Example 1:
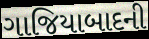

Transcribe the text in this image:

ગાજિયાબાદની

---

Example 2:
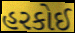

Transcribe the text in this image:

હરકોઈ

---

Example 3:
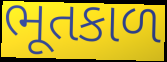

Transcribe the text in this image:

ભૂતકાળ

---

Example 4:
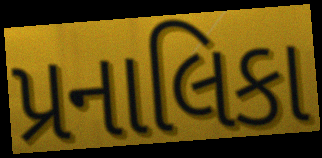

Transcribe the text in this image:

પ્રનાલિકા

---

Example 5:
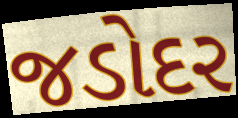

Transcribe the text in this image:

જડોદર